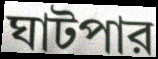
ঘাটপার